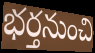
భర్తనుంచి